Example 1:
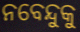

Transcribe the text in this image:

ନବେନ୍ଦୁକୁ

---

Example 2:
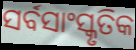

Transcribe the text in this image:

ସର୍ବସାଂସ୍କୃତିକ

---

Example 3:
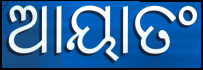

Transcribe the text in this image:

ଆୟାତଂ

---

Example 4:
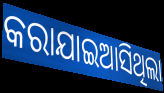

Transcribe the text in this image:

କରାଯାଇଆସିଥିଲା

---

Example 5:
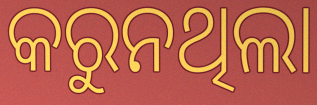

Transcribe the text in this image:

କରୁନଥିଲା